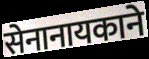
सेनानायकाने